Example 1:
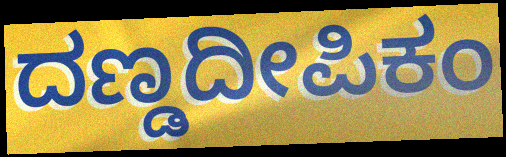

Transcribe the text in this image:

ದಣ್ಡದೀಪಿಕಂ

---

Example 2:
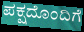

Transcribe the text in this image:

ಪಕ್ಷದೊಂದಿಗೆ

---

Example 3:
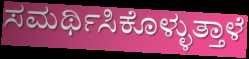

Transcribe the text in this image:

ಸಮರ್ಥಿಸಿಕೊಳ್ಳುತ್ತಾಳೆ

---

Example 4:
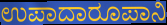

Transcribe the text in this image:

ಉಪಾದಾರೂಪಾನಿ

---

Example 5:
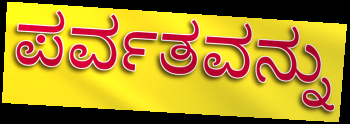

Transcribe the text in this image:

ಪರ್ವತವನ್ನು